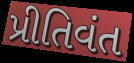
પ્રીતિવંત